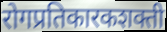
रोगप्रतिकारकशक्ती